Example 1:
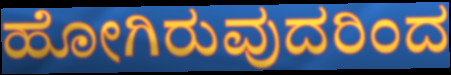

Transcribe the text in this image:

ಹೋಗಿರುವುದರಿಂದ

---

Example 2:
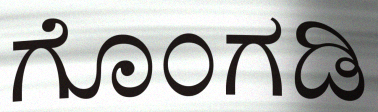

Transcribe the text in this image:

ಗೊಂಗಡಿ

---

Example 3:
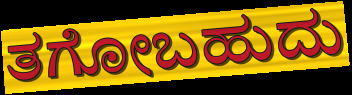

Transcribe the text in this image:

ತಗೋಬಹುದು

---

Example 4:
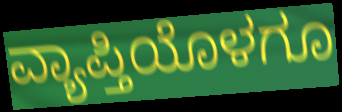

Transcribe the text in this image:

ವ್ಯಾಪ್ತಿಯೊಳಗೂ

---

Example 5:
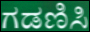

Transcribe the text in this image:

ಗಡಣಿಸಿ